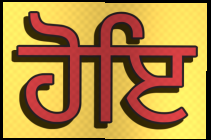
ਹੋਇ